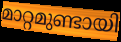
മാറ്റമുണ്ടായി